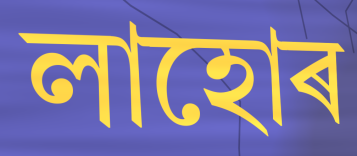
লাহোৰ